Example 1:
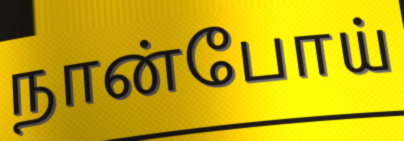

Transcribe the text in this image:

நான்போய்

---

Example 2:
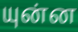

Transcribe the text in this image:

யுன்ன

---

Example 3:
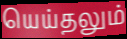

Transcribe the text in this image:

யெய்தலும்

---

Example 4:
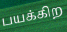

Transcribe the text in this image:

பயக்கிற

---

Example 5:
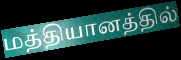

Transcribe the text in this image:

மத்தியானத்தில்